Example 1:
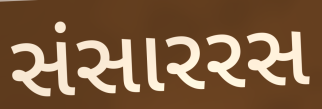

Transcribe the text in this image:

સંસારરસ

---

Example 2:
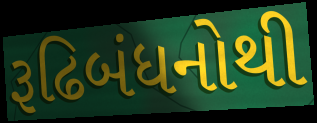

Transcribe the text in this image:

રૂઢિબંધનોથી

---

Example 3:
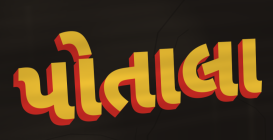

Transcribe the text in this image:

પોતાલા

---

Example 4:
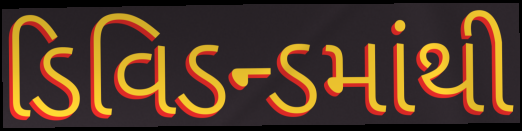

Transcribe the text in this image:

ડિવિડન્ડમાંથી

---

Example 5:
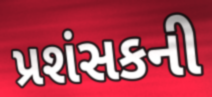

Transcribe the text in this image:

પ્રશંસકની